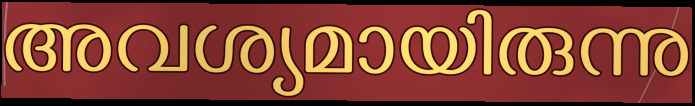
അവശ്യമായിരുന്നു